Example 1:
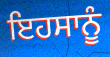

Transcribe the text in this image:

ਇਹਸਾਨੂੰ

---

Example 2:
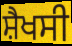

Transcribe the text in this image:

ਸ਼ੈਖਸੀ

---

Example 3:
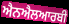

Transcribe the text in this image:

ਐਨਐਲਆਰਬੀ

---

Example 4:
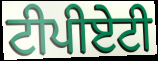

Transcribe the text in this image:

ਟੀਪੀਏਟੀ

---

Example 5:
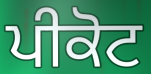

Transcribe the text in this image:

ਪੀਕੋਟ